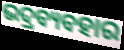
ଭଦ୍ରବ୍ୟବହାର